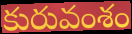
కురువంశం